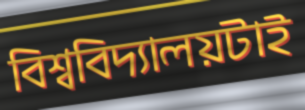
বিশ্ববিদ্যালয়টাই